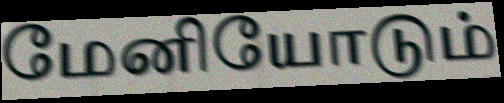
மேனியோடும்